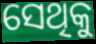
ସେଥିକୁ